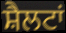
ਸ਼ੈਲਟਾਂ